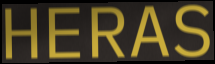
HERAS